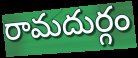
రామదుర్గం